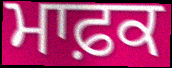
ਮਾਫ਼ਕ